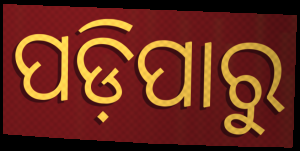
ପଡ଼ିପାରୁ